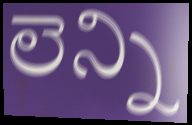
లెన్ని